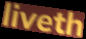
liveth